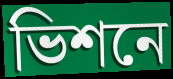
ভিশনে